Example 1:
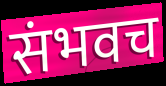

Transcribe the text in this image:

संभवच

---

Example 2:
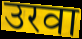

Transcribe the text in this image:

उरवा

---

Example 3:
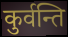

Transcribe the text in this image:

कुर्वन्ति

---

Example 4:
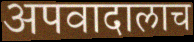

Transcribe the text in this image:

अपवादालाच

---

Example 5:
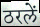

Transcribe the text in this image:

ठरलें